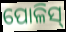
ପୋଳିସ୍